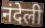
नंदेली